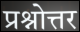
प्रश्नोत्तर